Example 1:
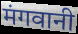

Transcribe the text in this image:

मंगवानी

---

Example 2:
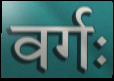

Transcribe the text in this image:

वर्गः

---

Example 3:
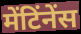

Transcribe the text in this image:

मेंटिंनेंस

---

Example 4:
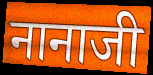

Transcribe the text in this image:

नानाजी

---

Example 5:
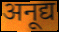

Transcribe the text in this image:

अनूद्य